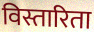
विस्तारिता